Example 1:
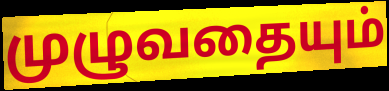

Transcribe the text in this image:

முழுவதையும்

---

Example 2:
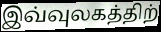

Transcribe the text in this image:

இவ்வுலகத்திற்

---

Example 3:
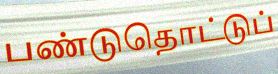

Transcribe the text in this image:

பண்டுதொட்டுப்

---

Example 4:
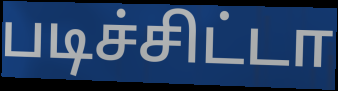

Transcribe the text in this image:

படிச்சிட்டா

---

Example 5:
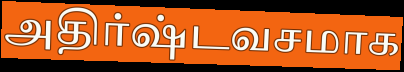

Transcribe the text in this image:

அதிர்ஷ்டவசமாக